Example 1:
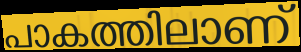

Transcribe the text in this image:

പാകത്തിലാണ്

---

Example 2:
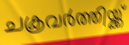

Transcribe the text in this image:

ചക്രവർത്തിയ്ക്ക്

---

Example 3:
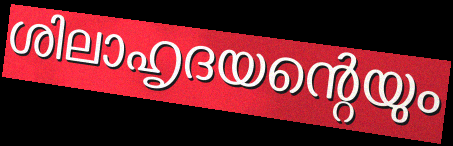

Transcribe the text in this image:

ശിലാഹൃദയന്റെയും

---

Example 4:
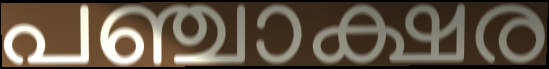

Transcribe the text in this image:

പഞ്ചാക്ഷര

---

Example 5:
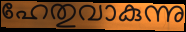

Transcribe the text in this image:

ഹേതുവാകുന്നു